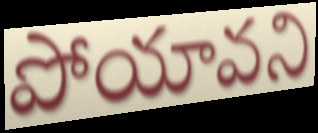
పోయావని